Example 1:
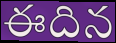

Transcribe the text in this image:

ఈదిన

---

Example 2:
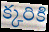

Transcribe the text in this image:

క్కరికి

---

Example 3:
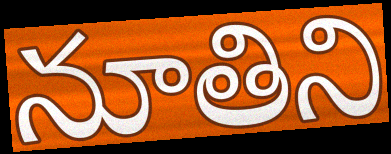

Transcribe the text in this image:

నూతిని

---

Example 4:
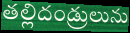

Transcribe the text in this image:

తల్లిదండ్రులును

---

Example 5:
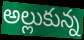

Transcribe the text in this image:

అల్లుకున్న